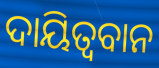
ଦାୟିତ୍ବବାନ